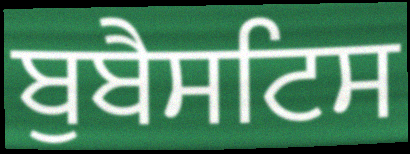
ਬੁਬੈਸਟਿਸ